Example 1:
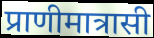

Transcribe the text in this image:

प्राणीमात्रासी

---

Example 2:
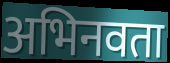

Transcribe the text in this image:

अभिनवता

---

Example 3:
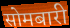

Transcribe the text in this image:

सोमबारी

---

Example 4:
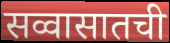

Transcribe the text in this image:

सव्वासातची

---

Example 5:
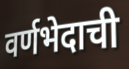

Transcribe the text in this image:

वर्णभेदाची